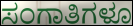
ಸಂಗಾತಿಗಳೂ